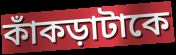
কাঁকড়াটাকে